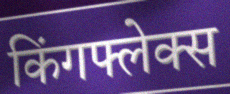
किंगफ्लेक्स